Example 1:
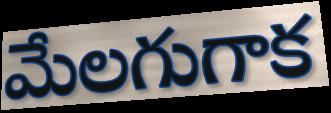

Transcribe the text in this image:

మేలగుగాక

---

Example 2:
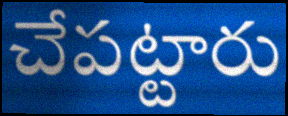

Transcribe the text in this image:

చేపట్టారు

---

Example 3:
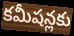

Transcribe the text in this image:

కమీషన్లకు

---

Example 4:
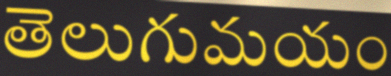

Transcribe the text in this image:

తెలుగుమయం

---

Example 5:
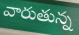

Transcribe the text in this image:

వారుతున్న